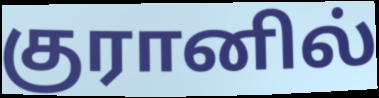
குரானில்